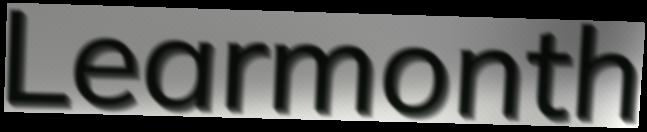
Learmonth